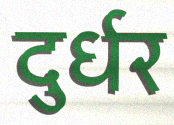
दुर्धर